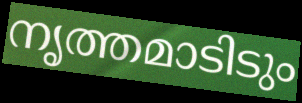
നൃത്തമാടിടും